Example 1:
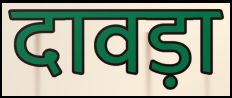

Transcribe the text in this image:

दावड़ा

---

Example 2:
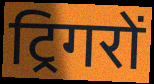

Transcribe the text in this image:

ट्रिगरों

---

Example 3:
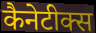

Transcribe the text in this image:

कैनेटीक्स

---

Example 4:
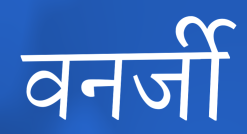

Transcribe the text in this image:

वनर्जी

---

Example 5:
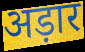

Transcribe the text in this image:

अड़ार